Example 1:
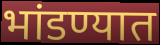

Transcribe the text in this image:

भांडण्यात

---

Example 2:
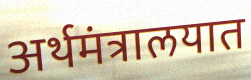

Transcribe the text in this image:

अर्थमंत्रालयात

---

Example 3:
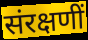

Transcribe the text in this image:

संरक्षणीं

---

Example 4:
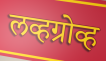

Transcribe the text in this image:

लव्हग्रोव्ह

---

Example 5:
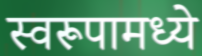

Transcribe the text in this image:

स्वरूपामध्ये